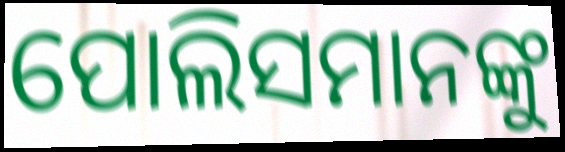
ପୋଲିସମାନଙ୍କୁ